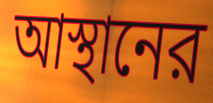
আস্থানের